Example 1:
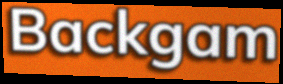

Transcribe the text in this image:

Backgam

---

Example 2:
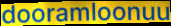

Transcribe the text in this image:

dooramloonuu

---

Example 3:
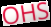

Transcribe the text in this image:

OHS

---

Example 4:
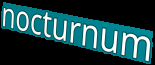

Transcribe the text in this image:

nocturnum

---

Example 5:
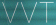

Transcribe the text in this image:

VVT